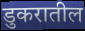
डुकरातील